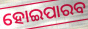
ହୋଇପାରବ